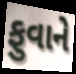
ફુવાને